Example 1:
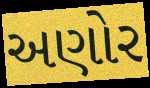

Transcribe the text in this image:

અણોર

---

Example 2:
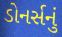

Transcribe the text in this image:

ડોનર્સનું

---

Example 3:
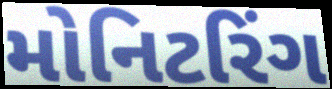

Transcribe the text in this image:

મોનિટરિંગ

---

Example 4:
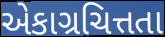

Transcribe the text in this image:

એકાગ્રચિત્તતા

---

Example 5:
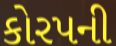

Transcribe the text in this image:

કોરપની